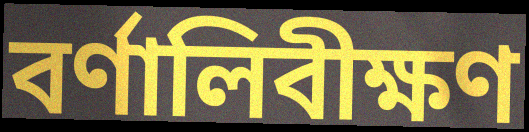
বর্ণালিবীক্ষণ